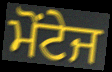
ਮੋਂਟੇਜ